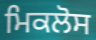
ਮਿਕਲੋਸ